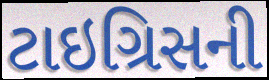
ટાઇગ્રિસની